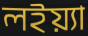
লইয়্যা